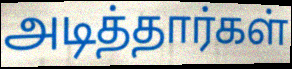
அடித்தார்கள்